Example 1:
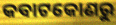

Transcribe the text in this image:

କବାଟକୋଣରୁ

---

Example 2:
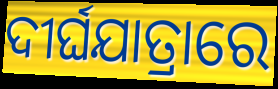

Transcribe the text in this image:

ଦୀର୍ଘଯାତ୍ରାରେ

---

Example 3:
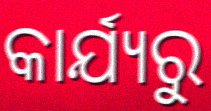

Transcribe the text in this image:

କାର୍ଯ୍ୟରୁ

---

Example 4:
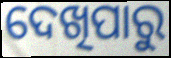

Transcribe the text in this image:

ଦେଖିପାରୁ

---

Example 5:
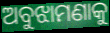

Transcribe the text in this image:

ଅବୁଝାମଣାକୁ